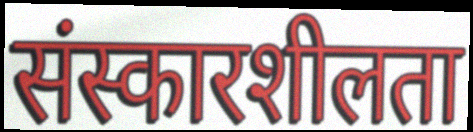
संस्कारशीलता